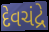
દેવચંદ્રે